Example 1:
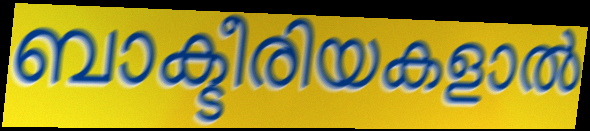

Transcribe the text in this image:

ബാക്ടീരിയകളാൽ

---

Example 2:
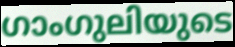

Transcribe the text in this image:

ഗാംഗുലിയുടെ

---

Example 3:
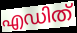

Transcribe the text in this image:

എഡിത്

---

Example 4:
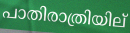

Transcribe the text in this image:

പാതിരാത്രിയില്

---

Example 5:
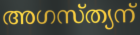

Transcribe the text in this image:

അഗസ്ത്യന്